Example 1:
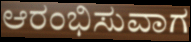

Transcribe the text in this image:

ಆರಂಭಿಸುವಾಗ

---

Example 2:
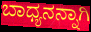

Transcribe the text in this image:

ಬಾಧ್ಯನನ್ನಾಗಿ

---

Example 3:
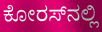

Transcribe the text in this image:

ಕೋರಸ್‌ನಲ್ಲಿ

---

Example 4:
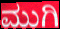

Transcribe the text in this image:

ಮುಗಿ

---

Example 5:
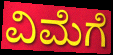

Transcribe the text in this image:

ವಿಮೆಗೆ